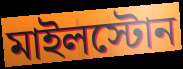
মাইলস্টোন